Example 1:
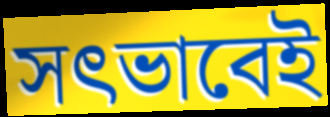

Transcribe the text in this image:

সৎভাবেই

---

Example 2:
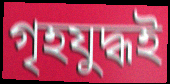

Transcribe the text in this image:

গৃহযুদ্ধই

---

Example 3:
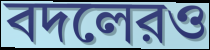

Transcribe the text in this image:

বদলেরও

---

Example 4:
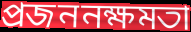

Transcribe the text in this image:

প্রজননক্ষমতা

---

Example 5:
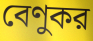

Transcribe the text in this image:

বেণুকর